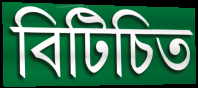
বিটিচিত